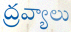
ద్రవ్యాలు